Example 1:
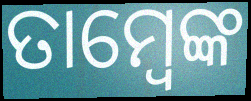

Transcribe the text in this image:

ତାମ୍ବେଙ୍କ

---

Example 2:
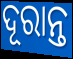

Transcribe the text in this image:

ଦୂରାନ୍ତ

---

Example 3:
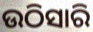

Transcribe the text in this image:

ଉଠିସାରି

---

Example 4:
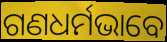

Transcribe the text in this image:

ଗଣଧର୍ମଭାବେ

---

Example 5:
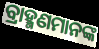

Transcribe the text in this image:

ବ୍ରାହ୍ମଣମାନଙ୍କ